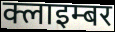
क्लाइम्बर